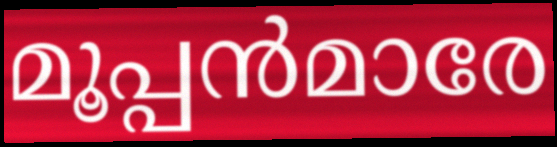
മൂപ്പൻമാരേ